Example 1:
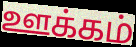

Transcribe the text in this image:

ஊக்கம்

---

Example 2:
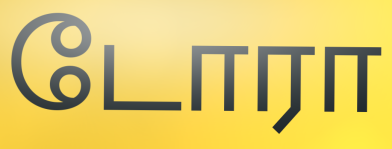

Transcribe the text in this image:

டோரா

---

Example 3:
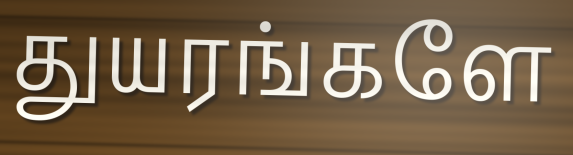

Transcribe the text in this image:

துயரங்களே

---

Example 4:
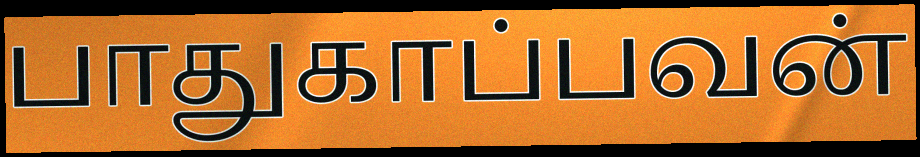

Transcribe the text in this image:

பாதுகாப்பவன்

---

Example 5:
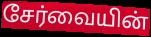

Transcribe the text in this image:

சேர்வையின்